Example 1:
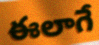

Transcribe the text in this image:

ఈలాగే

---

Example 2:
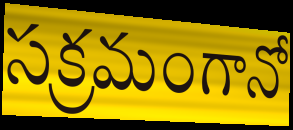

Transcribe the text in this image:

సక్రమంగానో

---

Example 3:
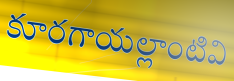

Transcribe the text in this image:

కూరగాయల్లాంటివి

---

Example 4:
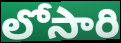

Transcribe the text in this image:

లోసారి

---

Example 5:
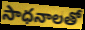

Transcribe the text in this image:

సాధనాలతో